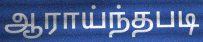
ஆராய்ந்தபடி